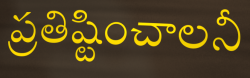
ప్రతిష్టించాలనీ